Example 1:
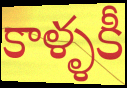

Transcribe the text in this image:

కాళ్ళకీ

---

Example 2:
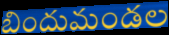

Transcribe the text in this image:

బిందుమండల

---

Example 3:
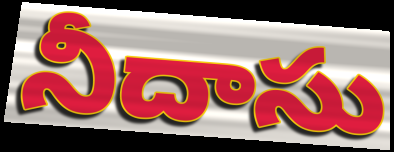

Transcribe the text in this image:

నీదాసు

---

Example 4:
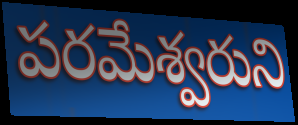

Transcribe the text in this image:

పరమేశ్వరుని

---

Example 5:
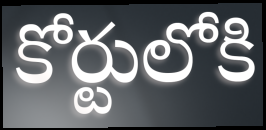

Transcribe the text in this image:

కోర్టులోకి